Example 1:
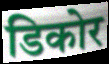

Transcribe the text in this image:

डिकोर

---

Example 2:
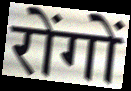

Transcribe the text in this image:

रोंगों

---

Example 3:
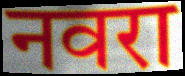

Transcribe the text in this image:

नवरा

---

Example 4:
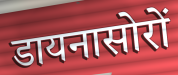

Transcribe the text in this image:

डायनासोरों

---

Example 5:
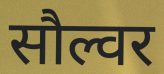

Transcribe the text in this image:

सौल्वर